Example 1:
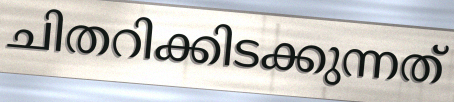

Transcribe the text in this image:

ചിതറിക്കിടക്കുന്നത്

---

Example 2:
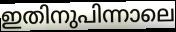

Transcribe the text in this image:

ഇതിനുപിന്നാലെ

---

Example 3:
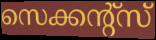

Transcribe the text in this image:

സെക്കന്റ്സ്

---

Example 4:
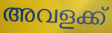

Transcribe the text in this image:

അവളക്ക്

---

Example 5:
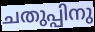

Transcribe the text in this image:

ചതുപ്പിനു